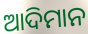
ଆଦିମାନ